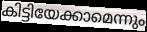
കിട്ടിയേക്കാമെന്നും